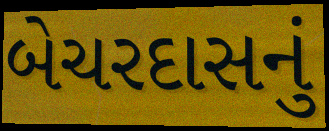
બેચરદાસનું